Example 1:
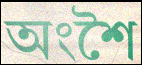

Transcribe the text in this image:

অংশৈ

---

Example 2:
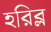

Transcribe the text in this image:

হরিব্ল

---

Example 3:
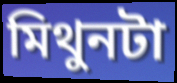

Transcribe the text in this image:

মিথুনটা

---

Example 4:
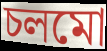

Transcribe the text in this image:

চলমো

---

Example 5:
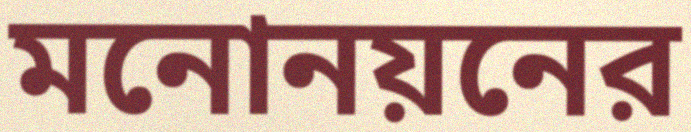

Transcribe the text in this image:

মনোনয়নের